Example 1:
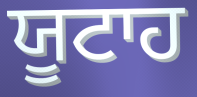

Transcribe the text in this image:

ਯੂਟਾਹ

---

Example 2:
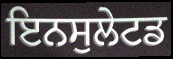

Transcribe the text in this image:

ਇਨਸੁਲੇਟਡ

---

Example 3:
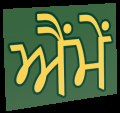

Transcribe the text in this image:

ਐਂਮੇਂ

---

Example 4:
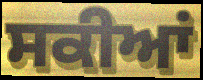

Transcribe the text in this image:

ਸਕੀਆਂ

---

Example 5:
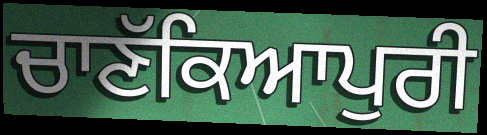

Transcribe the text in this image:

ਚਾਣੱਕਿਆਪੁਰੀ